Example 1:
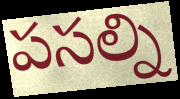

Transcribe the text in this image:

పసల్ని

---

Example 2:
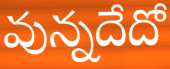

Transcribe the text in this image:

వున్నదేదో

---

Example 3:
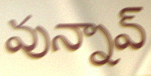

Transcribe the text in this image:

వున్నావ్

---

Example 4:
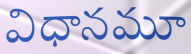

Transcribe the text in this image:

విధానమూ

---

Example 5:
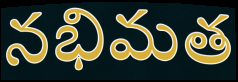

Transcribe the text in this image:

నభిమత